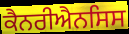
ਕੈਨਰੀਐਨਸਿਸ